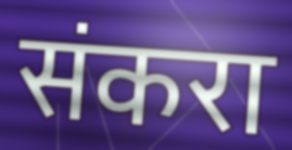
संकरा